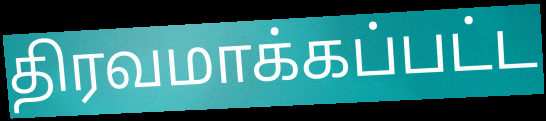
திரவமாக்கப்பட்ட